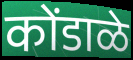
कोंडाळे